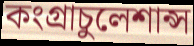
কংগ্রাচুলেশান্স